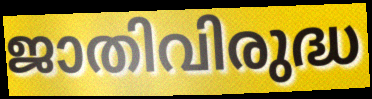
ജാതിവിരുദ്ധ